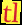
tl